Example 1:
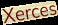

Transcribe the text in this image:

Xerces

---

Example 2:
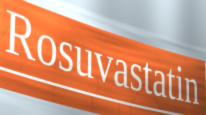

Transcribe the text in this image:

Rosuvastatin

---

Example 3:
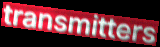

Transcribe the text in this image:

transmitters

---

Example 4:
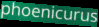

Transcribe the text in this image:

phoenicurus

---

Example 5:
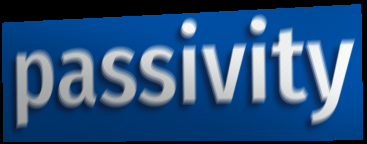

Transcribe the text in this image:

passivity